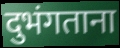
दुभंगताना